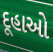
દૂહાઓ